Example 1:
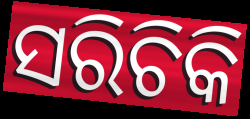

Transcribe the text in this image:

ସରିଚିକି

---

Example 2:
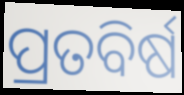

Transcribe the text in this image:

ପ୍ରତବିର୍ଷ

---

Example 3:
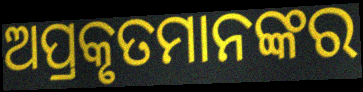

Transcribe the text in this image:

ଅପ୍ରକୃତମାନଙ୍କର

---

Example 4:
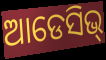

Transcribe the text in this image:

ଆଡେସିଭ୍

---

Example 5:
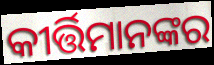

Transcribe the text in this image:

କୀର୍ତ୍ତିମାନଙ୍କର